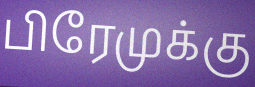
பிரேமுக்கு